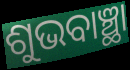
ଶୁଭବାଞ୍ଛା